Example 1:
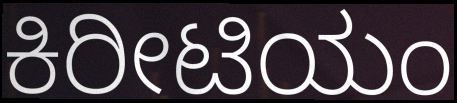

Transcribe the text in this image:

ಕಿರೀಟಿಯಂ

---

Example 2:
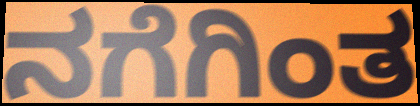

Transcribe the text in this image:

ನಗೆಗಿಂತ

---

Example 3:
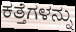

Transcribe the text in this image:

ಕತ್ತೆಗಳನ್ನು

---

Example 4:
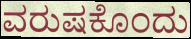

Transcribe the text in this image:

ವರುಷಕೊಂದು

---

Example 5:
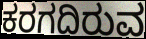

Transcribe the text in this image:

ಕರಗದಿರುವ